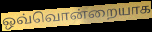
ஒவ்வொன்றையாக